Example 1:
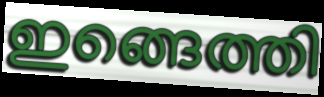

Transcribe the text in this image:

ഇങ്ങെത്തി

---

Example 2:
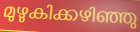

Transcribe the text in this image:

മുഴുകിക്കഴിഞ്ഞു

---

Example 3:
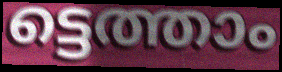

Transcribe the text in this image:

ട്ടെത്താം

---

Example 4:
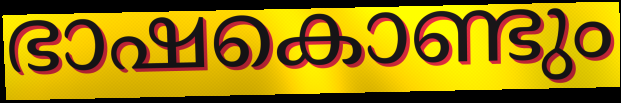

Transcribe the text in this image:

ഭാഷകൊണ്ടും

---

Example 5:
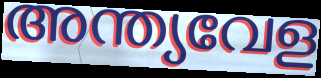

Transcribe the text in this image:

അന്ത്യവേള